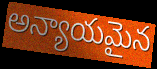
అన్యాయమైన